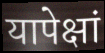
यापेक्षां